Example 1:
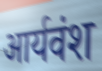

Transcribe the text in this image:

आर्यवंश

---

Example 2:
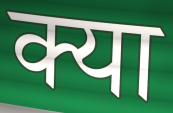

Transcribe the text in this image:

क्या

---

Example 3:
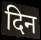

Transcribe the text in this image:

दिन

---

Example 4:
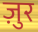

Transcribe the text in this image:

ज़ुर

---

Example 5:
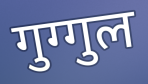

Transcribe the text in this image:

गुग्गुल